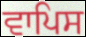
ਵਾਪਿਸ